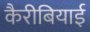
कैरीबियाई